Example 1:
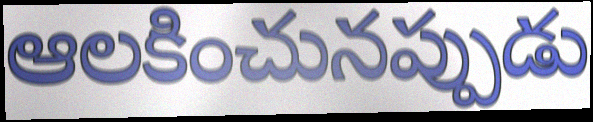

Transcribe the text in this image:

ఆలకించునప్పుడు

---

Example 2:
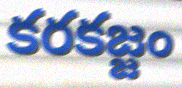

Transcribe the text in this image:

కరకజ్జం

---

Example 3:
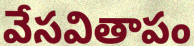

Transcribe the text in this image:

వేసవితాపం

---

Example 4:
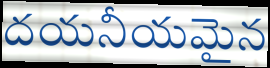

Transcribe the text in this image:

దయనీయమైన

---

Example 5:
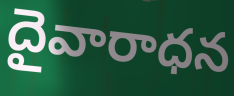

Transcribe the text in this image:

దైవారాధన